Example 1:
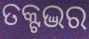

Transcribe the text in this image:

ତକ୍ଟଦ୍ଭର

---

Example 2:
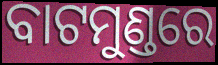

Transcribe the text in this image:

ବାଟମୁଣ୍ଡରେ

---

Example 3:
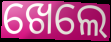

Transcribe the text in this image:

ଖେଲେ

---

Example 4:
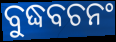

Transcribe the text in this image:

ବୁଦ୍ଧବଚନଂ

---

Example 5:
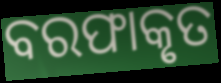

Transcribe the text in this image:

ବରଫାକୃତ